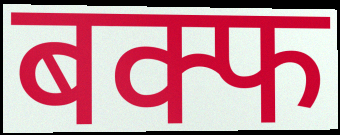
बक्फ